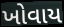
ખોવાય